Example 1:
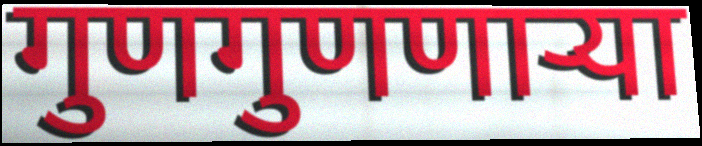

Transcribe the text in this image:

गुणगुणणाऱ्या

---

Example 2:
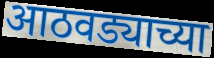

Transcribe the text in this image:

आठवड्याच्या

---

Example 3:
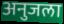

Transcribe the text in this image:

अनुजला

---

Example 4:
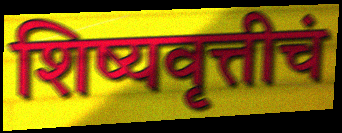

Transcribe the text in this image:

शिष्यवृत्तीचं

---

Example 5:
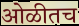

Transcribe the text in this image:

ओळीतच